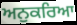
ਅਨੁਕਰਿਆ